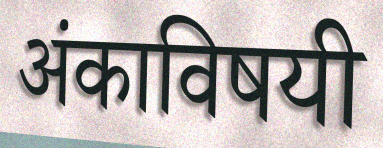
अंकाविषयी